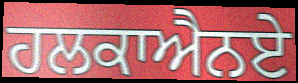
ਹਲਕਾਐਨਏ